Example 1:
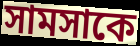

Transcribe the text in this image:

সামসাকে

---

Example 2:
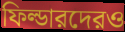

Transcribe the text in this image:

ফিল্ডারদেরও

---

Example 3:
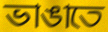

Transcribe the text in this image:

ভাঙাতে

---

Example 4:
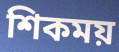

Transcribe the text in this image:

শিকময়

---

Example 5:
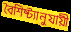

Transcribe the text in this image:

বৈশিষ্ট্যানুযায়ী